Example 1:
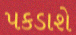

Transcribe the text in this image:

પકડાશે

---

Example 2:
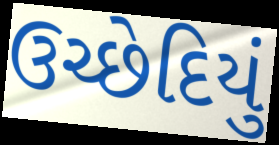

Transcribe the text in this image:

ઉચ્છેદિયું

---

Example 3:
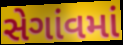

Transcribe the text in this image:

સેગાંવમાં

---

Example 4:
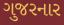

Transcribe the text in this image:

ગુજરનાર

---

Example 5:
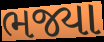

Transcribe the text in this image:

ભજ્યા